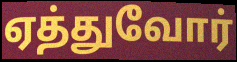
ஏத்துவோர்